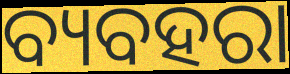
ବ୍ୟବହରା